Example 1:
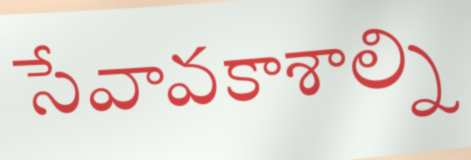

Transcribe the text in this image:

సేవావకాశాల్ని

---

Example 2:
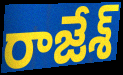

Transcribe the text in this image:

రాజేశ్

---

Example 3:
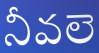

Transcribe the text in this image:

నీవలె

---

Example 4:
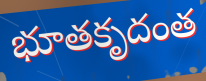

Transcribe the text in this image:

భూతకృదంత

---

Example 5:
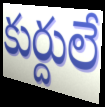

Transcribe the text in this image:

కుర్దులే